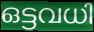
ഒട്ടവധി